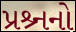
પ્રશ્ર્નનો